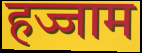
हज्जाम